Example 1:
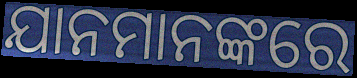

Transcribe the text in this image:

ଯାନମାନଙ୍କରେ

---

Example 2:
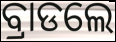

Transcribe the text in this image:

ବ୍ରାଡଲେ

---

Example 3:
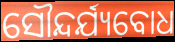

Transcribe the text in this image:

ସୌନ୍ଦର୍ଯ୍ୟବୋଧ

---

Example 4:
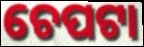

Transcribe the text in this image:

ଚେପଟା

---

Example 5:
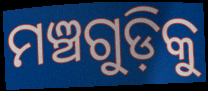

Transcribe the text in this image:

ମଞ୍ଚଗୁଡ଼ିକୁ